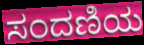
ಸಂದಣಿಯ